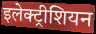
इलेक्‍ट्रीशियन